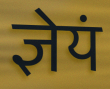
ज्ञेयं